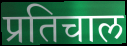
प्रतिचाल